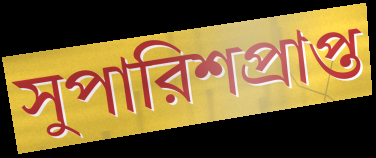
সুপারিশপ্রাপ্ত